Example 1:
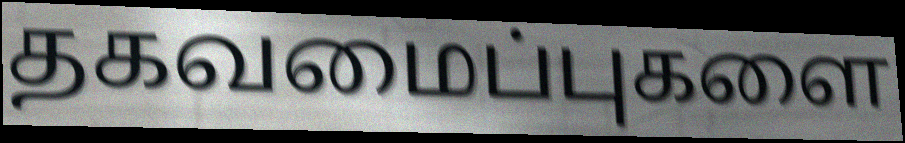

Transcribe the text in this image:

தகவமைப்புகளை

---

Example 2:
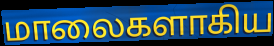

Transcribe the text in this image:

மாலைகளாகிய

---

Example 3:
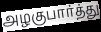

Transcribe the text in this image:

அழகுபார்த்து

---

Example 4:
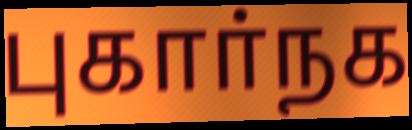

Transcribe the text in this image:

புகார்நக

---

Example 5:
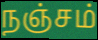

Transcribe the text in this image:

நஞ்சம்